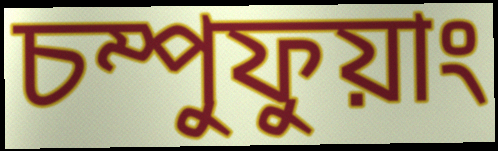
চম্পুফুয়াং